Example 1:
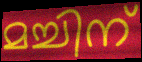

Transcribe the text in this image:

മച്ചിന്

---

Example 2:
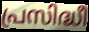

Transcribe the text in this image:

പ്രസിദ്ധീ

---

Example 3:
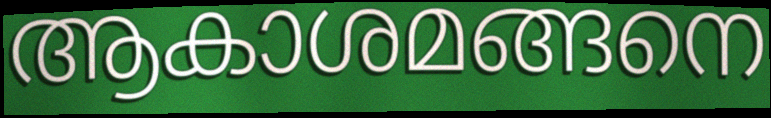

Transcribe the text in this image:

ആകാശമങ്ങനെ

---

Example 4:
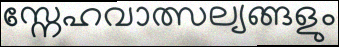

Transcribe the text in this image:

സ്നേഹവാത്സല്യങ്ങളും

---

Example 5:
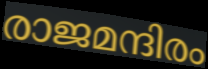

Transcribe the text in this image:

രാജമന്ദിരം